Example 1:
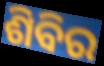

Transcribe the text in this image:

ଶିବିର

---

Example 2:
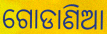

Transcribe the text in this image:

ଗୋଡାଣିଆ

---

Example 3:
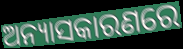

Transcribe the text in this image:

ଅନ୍ୟାସକାରଣରେ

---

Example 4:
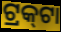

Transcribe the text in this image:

ଟ୍ରକ୍‌ଟା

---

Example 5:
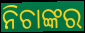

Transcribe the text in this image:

ନିଚାଙ୍କର